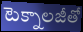
టెక్నాలజీతో